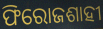
ଫିରୋଜଶାହୀ